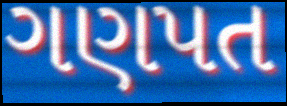
ગણપત